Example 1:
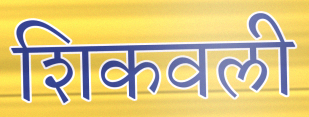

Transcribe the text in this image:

शिकवली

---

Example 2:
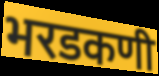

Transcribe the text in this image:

भरडकणी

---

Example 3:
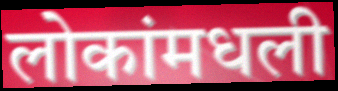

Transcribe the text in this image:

लोकांमधली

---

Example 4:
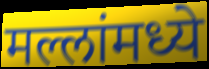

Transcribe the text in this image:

मल्लांमध्ये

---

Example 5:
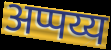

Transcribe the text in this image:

अप्पय्य